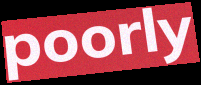
poorly